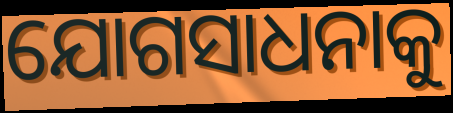
ଯୋଗସାଧନାକୁ